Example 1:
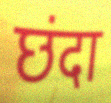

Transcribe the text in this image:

छंदा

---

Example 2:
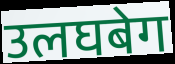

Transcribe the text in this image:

उलघबेग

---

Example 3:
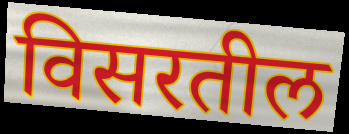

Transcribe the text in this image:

विसरतील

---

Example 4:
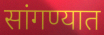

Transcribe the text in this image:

सांगण्यात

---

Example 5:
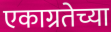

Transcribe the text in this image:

एकाग्रतेच्या